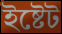
ইষ্টেট